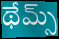
థేమ్స్